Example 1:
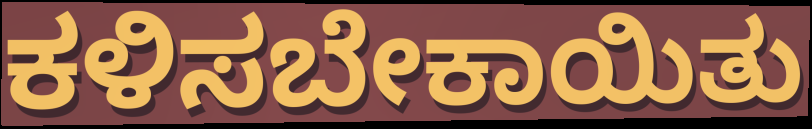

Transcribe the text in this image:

ಕಳಿಸಬೇಕಾಯಿತು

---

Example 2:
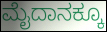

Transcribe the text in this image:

ಮೈದಾನಕ್ಕೂ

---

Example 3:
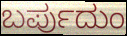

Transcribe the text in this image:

ಬರ್ಪುದುಂ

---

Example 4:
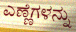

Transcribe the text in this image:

ಎಣ್ಣೆಗಳನ್ನು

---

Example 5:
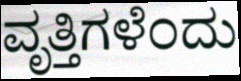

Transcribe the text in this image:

ವೃತ್ತಿಗಳೆಂದು